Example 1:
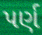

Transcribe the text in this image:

પર્ણ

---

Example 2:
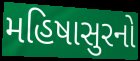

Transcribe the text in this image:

મહિષાસુરનો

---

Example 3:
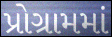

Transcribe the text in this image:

પ્રોગ્રામમાં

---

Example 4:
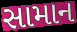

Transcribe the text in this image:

સામાન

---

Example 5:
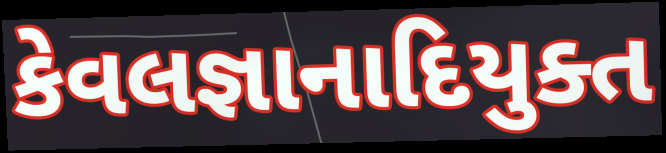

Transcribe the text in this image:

કેવલજ્ઞાનાદિયુક્ત